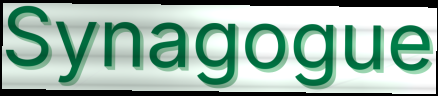
Synagogue